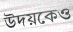
উদয়কেও